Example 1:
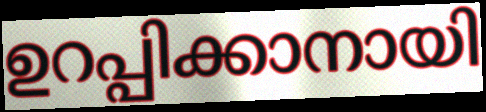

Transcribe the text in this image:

ഉറപ്പിക്കാനായി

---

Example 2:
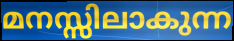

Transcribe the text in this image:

മനസ്സിലാകുന്ന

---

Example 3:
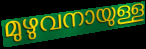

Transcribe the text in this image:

മുഴുവനായുള്ള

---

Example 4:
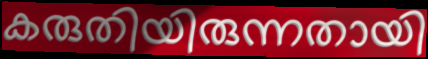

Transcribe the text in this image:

കരുതിയിരുന്നതായി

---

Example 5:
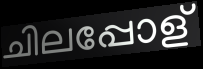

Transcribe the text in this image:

ചിലപ്പോള്